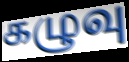
கழுவு